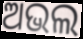
ଅଭଲ